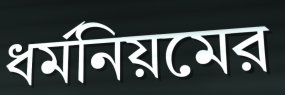
ধর্মনিয়মের